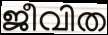
ജീവിത